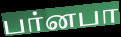
பர்னபா